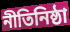
নীতিনিষ্ঠা